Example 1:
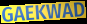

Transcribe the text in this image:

GAEKWAD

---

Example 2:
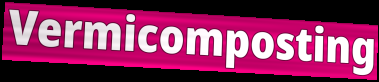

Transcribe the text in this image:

Vermicomposting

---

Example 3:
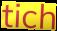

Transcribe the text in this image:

tich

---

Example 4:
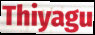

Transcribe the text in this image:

Thiyagu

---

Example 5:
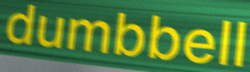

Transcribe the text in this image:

dumbbell